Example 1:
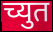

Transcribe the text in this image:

च्‍युत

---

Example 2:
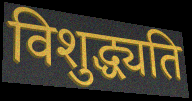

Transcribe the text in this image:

विशुद्ध्यति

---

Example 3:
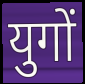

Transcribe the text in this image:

युगों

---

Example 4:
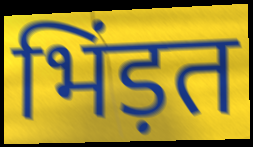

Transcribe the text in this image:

भिंड़त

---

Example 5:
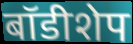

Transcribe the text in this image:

बॉडीशेप